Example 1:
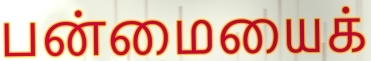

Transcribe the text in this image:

பன்மையைக்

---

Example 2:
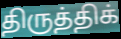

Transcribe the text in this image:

திருத்திக்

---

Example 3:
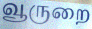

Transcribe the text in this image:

வூருறை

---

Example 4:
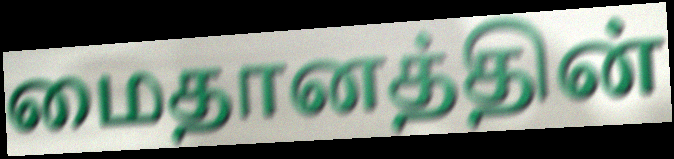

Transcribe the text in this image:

மைதானத்தின்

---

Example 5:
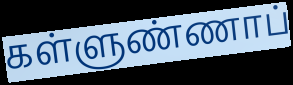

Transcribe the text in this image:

கள்ளுண்ணாப்